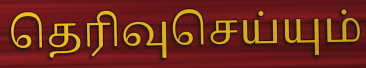
தெரிவுசெய்யும்